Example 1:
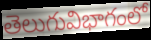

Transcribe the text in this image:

తెలుగువిభాగంలో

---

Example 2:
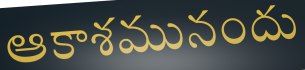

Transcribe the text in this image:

ఆకాశమునందు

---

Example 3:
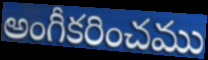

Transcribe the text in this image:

అంగీకరించము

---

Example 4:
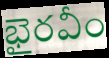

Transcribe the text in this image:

భైరవీం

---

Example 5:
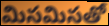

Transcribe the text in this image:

మిసమిసతో